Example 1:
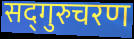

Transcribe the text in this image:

सद्‍गुरुचरण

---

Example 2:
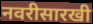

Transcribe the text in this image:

नवरीसारखी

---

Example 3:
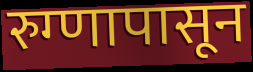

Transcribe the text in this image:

रुग्णापासून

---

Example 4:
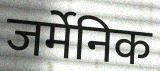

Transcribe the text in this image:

जर्मेनिक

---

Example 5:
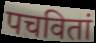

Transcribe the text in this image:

पचवितां